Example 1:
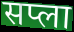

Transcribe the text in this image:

सप्ला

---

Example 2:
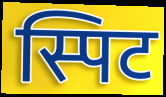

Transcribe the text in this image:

स्पिट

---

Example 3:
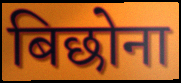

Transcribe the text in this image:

बिछोना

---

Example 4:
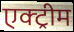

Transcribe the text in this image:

एक्ट्रीम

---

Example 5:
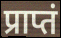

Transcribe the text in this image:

प्राप्तं